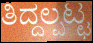
ತಿದ್ದಲ್ಪಟ್ಟ